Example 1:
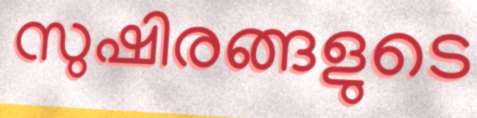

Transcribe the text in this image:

സുഷിരങ്ങളുടെ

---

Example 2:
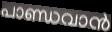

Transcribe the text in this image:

പാണ്ഡവാൻ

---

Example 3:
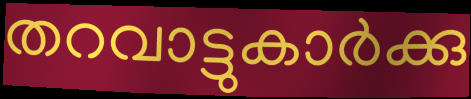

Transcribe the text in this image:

തറവാട്ടുകാർക്കു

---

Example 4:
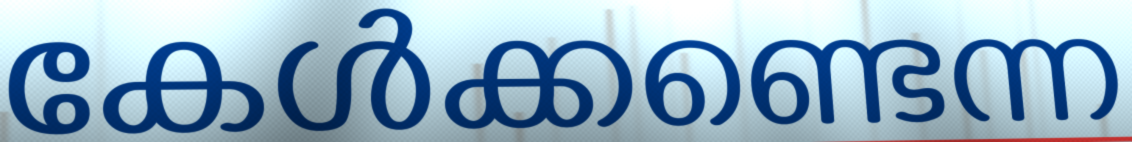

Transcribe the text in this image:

കേൾക്കണ്ടെന്ന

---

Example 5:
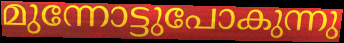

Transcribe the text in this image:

മുന്നോട്ടുപോകുന്നു